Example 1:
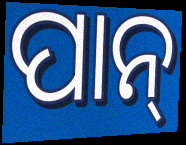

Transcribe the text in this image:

ପାନ୍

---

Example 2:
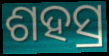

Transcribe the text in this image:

ଶହସ୍ର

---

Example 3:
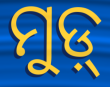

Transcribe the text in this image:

ମୁଡ଼୍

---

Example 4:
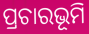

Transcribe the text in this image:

ପ୍ରଚାରଭୂମି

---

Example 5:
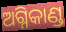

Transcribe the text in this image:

ଅଗ୍ନିକାଣ୍ଡ